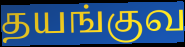
தயங்குவ